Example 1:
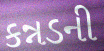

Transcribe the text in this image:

કન્નડની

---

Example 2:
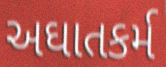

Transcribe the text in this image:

અઘાતકર્મ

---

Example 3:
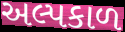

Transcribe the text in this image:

અલ્પકાળ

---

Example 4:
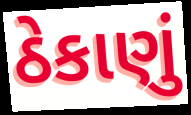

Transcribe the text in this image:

ઠેકાણું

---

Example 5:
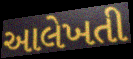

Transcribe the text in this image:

આલેખતી